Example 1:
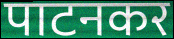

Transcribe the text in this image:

पाटनकर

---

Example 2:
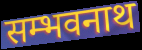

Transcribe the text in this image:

सम्भवनाथ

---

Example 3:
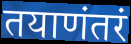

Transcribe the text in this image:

तयाणंतरं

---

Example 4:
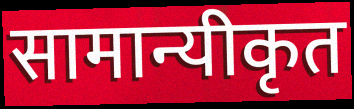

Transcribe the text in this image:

सामान्यीकृत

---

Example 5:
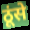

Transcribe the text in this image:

ठूंसे